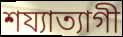
শয্যাত্যাগী